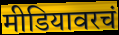
मीडियावरचं